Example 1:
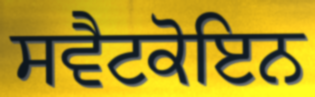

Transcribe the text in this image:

ਸਵੈਟਕੋਇਨ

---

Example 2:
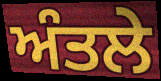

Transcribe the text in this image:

ਅੰਤਲੇ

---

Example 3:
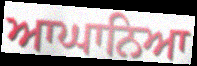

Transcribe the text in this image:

ਆਘਾਨਿਆ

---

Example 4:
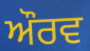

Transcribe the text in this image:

ਔਰਵ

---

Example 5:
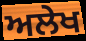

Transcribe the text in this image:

ਅਲੇਖ